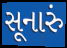
સૂનારું